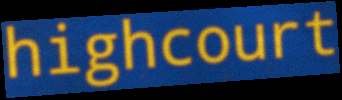
highcourt